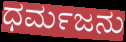
ಧರ್ಮಜನು